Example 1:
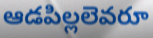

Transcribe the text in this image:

ఆడపిల్లలెవరూ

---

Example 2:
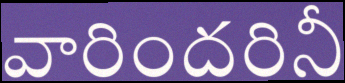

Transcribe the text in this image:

వారిందరినీ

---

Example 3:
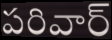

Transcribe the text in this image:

పరివార్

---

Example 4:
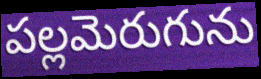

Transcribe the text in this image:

పల్లమెరుగును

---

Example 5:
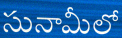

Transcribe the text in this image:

సునామీలో